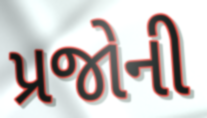
પ્રજોની